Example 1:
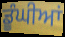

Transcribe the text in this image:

ਡੂੰਘੀਆਂ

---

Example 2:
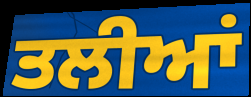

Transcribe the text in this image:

ਤਲੀਆਂ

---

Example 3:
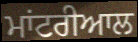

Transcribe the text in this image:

ਮਾਂਟਰੀਆਲ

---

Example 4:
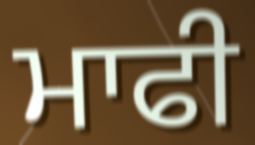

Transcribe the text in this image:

ਮਾਫੀ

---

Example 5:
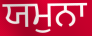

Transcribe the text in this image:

ਯਮੁਨਾ